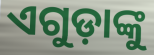
ଏଗୁଡ଼ାଙ୍କୁ